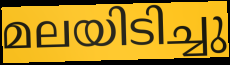
മലയിടിച്ചു